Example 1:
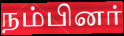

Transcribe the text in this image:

நம்பினர்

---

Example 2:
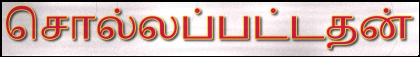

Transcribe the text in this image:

சொல்லப்பட்டதன்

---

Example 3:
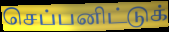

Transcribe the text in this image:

செப்பனிட்டுக்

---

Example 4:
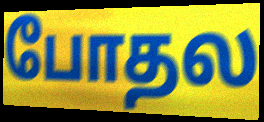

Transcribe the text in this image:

போதல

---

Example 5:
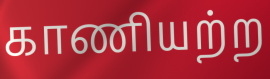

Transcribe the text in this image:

காணியற்ற